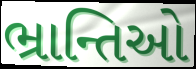
ભ્રાન્તિઓ